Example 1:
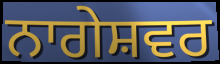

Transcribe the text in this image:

ਨਾਗੇਸ਼ਵਰ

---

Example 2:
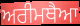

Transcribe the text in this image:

ਅਰੀਮਥੈਆ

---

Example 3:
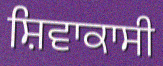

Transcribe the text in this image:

ਸ਼ਿਵਾਕਾਸੀ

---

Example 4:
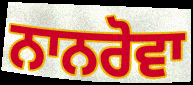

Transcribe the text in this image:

ਨਾਨਰੋਵਾ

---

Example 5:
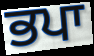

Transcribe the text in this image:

ਭਪਾ